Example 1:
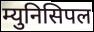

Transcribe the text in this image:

म्युनिसिपल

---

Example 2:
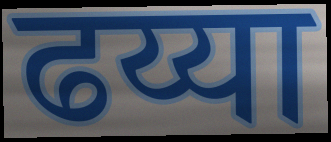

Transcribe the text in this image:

ढय्या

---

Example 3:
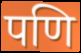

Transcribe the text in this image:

पणि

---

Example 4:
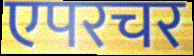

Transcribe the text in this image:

एपरचर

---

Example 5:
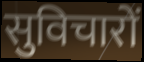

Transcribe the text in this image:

सुविचारों